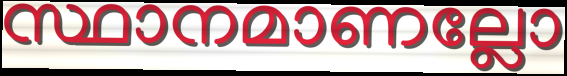
സ്ഥാനമാണല്ലോ